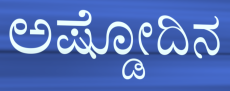
ಅಷ್ಡೋದಿನ